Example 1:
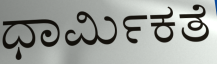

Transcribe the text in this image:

ಧಾರ್ಮಿಕತೆ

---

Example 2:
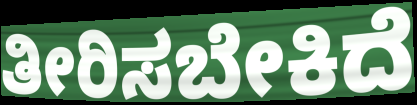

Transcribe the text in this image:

ತೀರಿಸಬೇಕಿದೆ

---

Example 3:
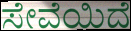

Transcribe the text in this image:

ಸೇವೆಯಿದೆ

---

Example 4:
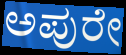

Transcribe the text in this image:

ಅಪುರೇ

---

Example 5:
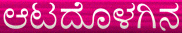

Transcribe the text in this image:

ಆಟದೊಳಗಿನ